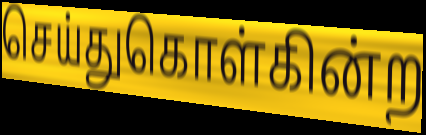
செய்துகொள்கின்ற